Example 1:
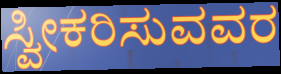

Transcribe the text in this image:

ಸ್ವೀಕರಿಸುವವರ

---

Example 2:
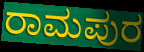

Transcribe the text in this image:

ರಾಮಪುರ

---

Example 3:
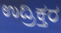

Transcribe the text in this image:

ಉದ್ರಿಕ್ತರ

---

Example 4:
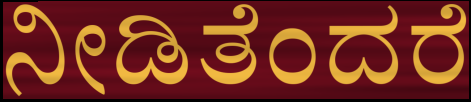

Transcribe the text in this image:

ನೀಡಿತೆಂದರೆ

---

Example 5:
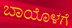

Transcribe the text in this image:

ಬಾಯೊಳಗೆ